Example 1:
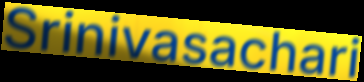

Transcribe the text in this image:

Srinivasachari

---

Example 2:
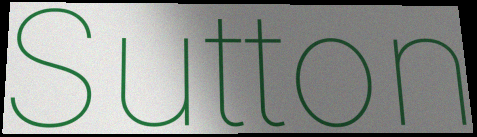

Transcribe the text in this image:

Sutton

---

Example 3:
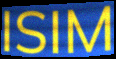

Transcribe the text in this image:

ISIM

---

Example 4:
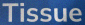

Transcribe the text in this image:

Tissue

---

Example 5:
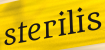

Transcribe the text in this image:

sterilis